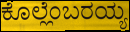
ಕೊಲ್ಲೆಂಬರಯ್ಯ